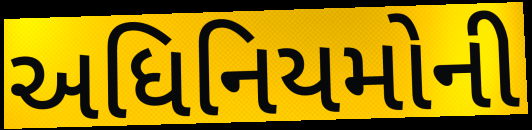
અધિનિયમોની